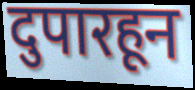
दुपारहून